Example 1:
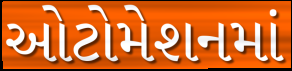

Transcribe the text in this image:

ઓટોમેશનમાં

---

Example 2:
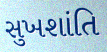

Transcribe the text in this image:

સુખશાંતિ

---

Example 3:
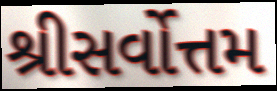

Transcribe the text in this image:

શ્રીસર્વોત્તમ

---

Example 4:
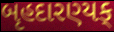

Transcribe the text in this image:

બૃહદારણ્યક્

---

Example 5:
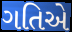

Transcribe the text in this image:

ગતિએ